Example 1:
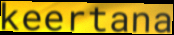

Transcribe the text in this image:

keertana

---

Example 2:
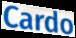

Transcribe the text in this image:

Cardo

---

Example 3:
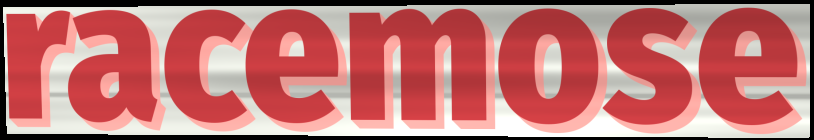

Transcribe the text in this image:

racemose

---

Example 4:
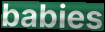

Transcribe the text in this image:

babies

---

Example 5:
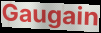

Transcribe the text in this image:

Gaugain